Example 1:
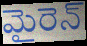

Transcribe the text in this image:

మైరెన్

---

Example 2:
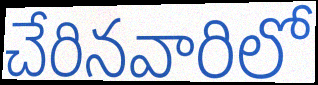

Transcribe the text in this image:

చేరినవారిలో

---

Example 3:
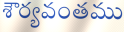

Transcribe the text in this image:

శౌర్యవంతము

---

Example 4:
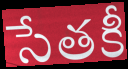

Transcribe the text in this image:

సేతకీ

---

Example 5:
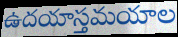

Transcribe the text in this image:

ఉదయాస్తమయాల